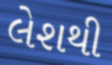
લેશથી